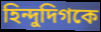
হিন্দুদিগকে